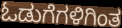
ಓಡುಗೆಗಳಿಗಿಂತ